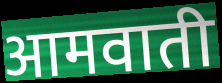
आमवाती